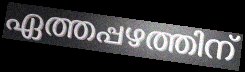
ഏത്തപ്പഴത്തിന്